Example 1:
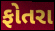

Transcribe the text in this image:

ફોતરા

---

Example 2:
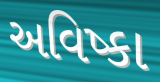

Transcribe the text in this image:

અવિષ્કા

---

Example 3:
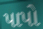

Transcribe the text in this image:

પાપો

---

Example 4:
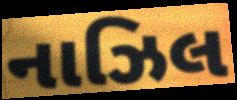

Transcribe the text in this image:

નાઝિલ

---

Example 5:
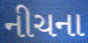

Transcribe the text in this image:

નીચના